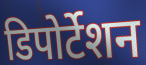
डिपोर्टेशन